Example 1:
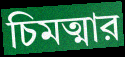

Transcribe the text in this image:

চিমত্মার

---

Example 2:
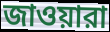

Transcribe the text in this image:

জাওয়ারা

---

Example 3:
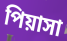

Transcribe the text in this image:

পিয়াসা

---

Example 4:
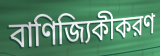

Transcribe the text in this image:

বাণিজ্যিকীকরণ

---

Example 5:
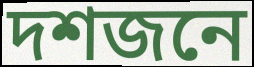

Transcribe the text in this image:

দশজনে